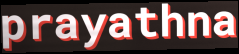
prayathna